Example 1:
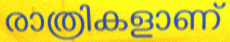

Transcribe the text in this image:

രാത്രികളാണ്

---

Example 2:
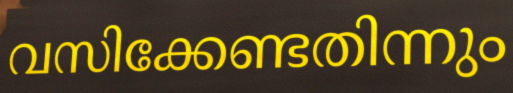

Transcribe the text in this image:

വസിക്കേണ്ടതിന്നും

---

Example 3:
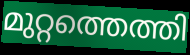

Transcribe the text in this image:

മുറ്റത്തെത്തി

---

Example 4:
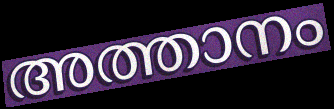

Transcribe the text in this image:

അത്താനം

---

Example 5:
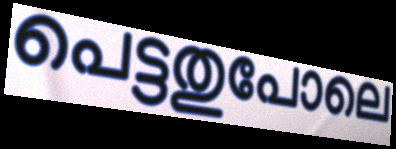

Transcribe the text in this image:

പെട്ടതുപോലെ